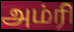
அம்ரி